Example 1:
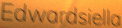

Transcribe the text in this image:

Edwardsiella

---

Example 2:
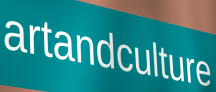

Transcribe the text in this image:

artandculture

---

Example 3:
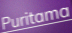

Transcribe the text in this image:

Puritama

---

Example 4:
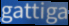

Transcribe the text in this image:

gattiga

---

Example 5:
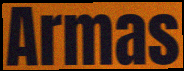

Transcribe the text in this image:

Armas